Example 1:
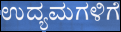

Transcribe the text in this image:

ಉದ್ಯಮಗಳಿಗೆ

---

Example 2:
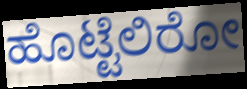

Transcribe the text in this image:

ಹೊಟ್ಟೆಲಿರೋ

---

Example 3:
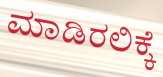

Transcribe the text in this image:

ಮಾಡಿರಲಿಕ್ಕೆ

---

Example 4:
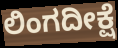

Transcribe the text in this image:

ಲಿಂಗದೀಕ್ಷೆ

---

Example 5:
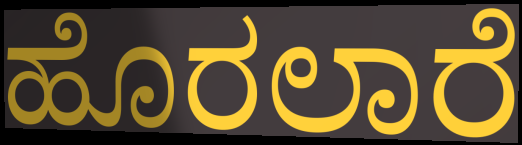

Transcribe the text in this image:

ಹೊರಲಾರೆ